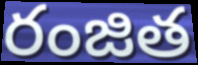
రంజిత